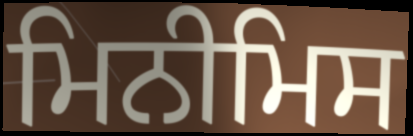
ਮਿਨੀਮਿਸ